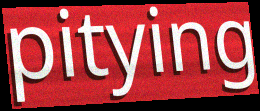
pitying